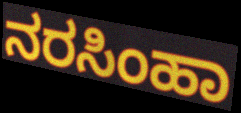
ನರಸಿಂಹಾ